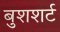
बुशशर्ट